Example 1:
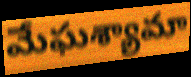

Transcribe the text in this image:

మేఘశ్యామా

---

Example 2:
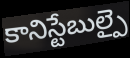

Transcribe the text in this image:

కానిస్టేబుల్పై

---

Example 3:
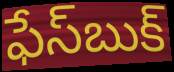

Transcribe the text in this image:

ఫేస్‌బుక్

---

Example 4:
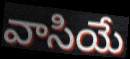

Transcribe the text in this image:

వాసియే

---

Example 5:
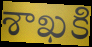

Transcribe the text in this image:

శాఖకి